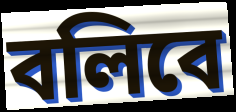
বলিবে